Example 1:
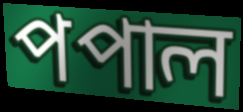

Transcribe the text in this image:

পপাল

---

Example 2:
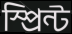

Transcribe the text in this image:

স্প্রিন্ট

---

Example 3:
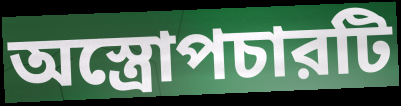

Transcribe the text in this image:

অস্ত্রোপচারটি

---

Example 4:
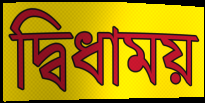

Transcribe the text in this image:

দ্বিধাময়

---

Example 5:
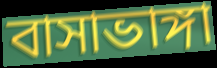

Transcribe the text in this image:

বাসাভাঙ্গা